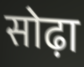
सोढ़ा